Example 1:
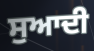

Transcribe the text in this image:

ਸੁਆਦੀ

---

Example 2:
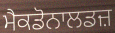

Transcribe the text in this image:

ਮੈਕਡੋਨਾਲਡਜ਼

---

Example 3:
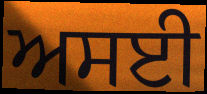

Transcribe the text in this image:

ਅਸਈ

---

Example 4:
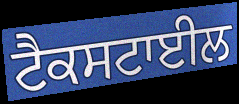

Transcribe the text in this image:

ਟੈਕਸਟਾਈਲ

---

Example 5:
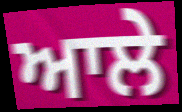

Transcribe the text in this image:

ਆਲੇ